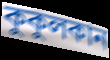
কুকুলকান